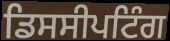
ਡਿਸਸੀਪਟਿੰਗ